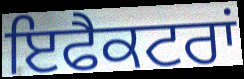
ਇਫੈਕਟਰਾਂ